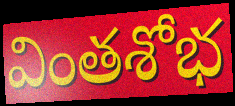
వింతశోభ